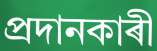
প্ৰদানকাৰী